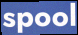
spool